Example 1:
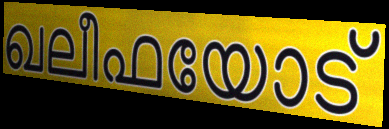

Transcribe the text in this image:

ഖലീഫയോട്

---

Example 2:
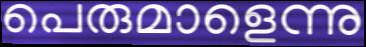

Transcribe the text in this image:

പെരുമാളെന്നു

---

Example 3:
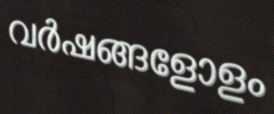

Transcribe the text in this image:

വർഷങ്ങളോളം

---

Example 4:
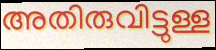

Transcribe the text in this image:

അതിരുവിട്ടുള്ള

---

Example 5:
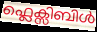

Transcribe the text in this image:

ഫ്ലെക്സിബിൾ